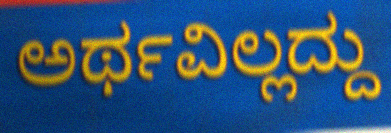
ಅರ್ಥವಿಲ್ಲದ್ದು